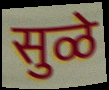
सुळे